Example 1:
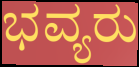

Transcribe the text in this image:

ಭವ್ಯರು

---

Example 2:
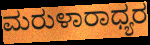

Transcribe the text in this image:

ಮರುಳಾರಾಧ್ಯರ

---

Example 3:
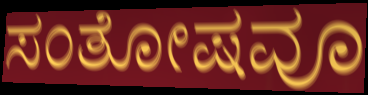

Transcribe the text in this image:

ಸಂತೋಷವೂ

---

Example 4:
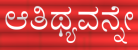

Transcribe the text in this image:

ಆತಿಥ್ಯವನ್ನೇ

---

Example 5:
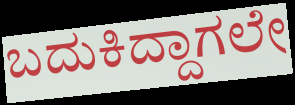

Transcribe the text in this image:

ಬದುಕಿದ್ದಾಗಲೇ